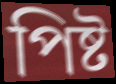
পিষ্ট